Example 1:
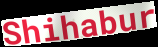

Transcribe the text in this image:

Shihabur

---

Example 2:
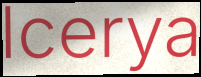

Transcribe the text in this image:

Icerya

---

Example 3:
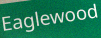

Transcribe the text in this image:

Eaglewood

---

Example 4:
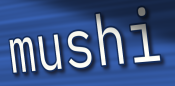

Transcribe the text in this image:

mushi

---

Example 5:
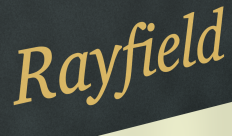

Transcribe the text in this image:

Rayfield